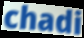
chadi